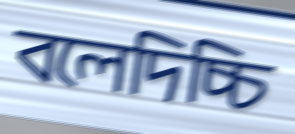
বলেদিচ্চি